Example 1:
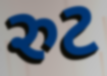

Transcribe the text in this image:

રુટ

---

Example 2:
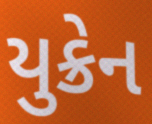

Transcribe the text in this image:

યુક્રેન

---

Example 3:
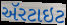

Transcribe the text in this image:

ઍરટાઇટ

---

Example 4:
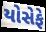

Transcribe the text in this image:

યોસેફે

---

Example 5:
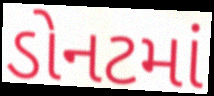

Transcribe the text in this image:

ડોનટમાં